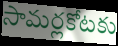
సామర్లకోటకు